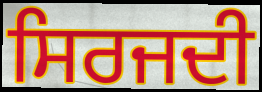
ਸਿਰਜਦੀ